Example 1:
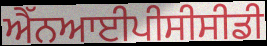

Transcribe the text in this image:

ਐੱਨਆਈਪੀਸੀਸੀਡੀ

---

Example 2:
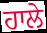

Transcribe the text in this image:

ਹਾਲੇ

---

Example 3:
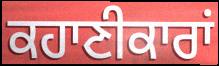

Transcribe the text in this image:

ਕਹਾਣੀਕਾਰਾਂ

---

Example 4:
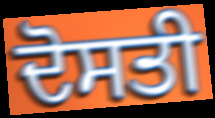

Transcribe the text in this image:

ਦੋਸਤੀ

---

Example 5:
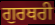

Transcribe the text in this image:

ਗੁਰਥਰੀ